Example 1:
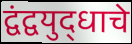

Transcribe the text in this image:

द्वंद्वयुद्धाचे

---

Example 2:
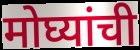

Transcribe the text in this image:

मोघ्यांची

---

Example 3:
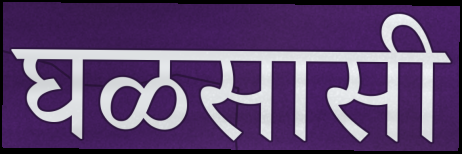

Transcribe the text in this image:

घळसासी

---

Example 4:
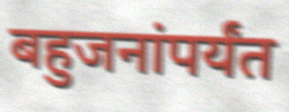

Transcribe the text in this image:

बहुजनांपर्यंत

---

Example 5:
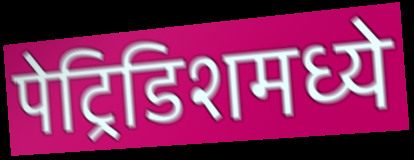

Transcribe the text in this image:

पेट्रिडिशमध्ये